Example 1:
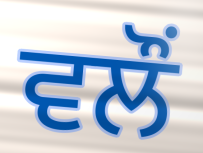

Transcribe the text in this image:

ਵਲੌਂ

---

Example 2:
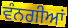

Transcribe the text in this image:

ਵੰਨਗੀਆਂ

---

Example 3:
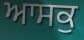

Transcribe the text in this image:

ਆਸਕੁ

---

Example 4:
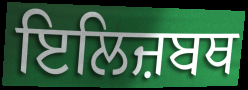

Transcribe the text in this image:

ਇਲਿਜ਼ਬਥ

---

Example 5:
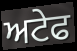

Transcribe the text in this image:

ਅਟੇਫ